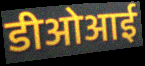
डीओआई